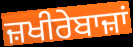
ਜ਼ਖੀਰੇਬਾਜ਼ਾਂ